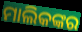
ମାଲିକଙ୍କର